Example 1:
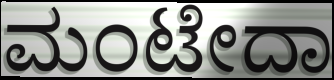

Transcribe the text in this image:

ಮಂಟೇದಾ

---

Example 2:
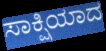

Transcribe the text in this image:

ಸಾಕ್ಷಿಯಾದ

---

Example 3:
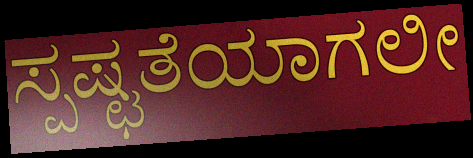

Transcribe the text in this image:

ಸ್ಪಷ್ಟತೆಯಾಗಲೀ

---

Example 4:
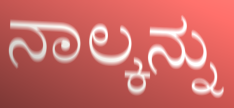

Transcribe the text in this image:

ನಾಲ್ಕನ್ನು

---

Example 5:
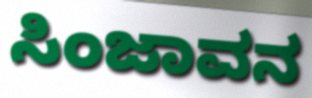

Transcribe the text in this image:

ಸಿಂಜಾವನ